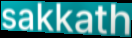
sakkath